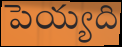
పెయ్యది